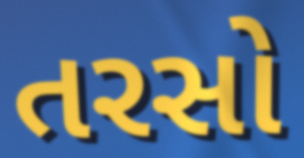
તરસો